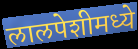
लालपेशीमध्ये